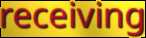
receiving